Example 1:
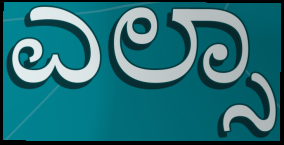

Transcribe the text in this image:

ಎಲ್ಸಾ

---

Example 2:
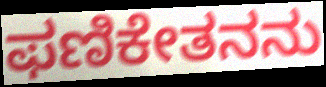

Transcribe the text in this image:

ಫಣಿಕೇತನನು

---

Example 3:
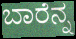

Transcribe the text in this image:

ಬಾರೆನ್ನ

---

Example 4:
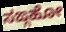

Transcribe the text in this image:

ಸಙ್ಗಹೋ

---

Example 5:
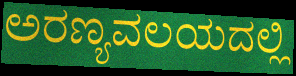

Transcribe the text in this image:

ಅರಣ್ಯವಲಯದಲ್ಲಿ